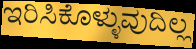
ಇರಿಸಿಕೊಳ್ಳುವುದಿಲ್ಲ